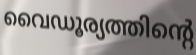
വൈഡൂര്യത്തിന്റെ